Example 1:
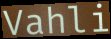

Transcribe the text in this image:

Vahli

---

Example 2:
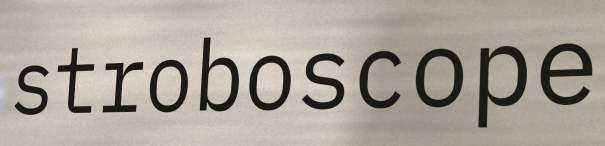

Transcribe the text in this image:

stroboscope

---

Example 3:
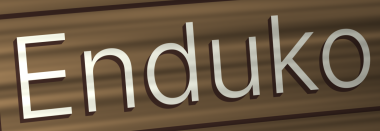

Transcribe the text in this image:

Enduko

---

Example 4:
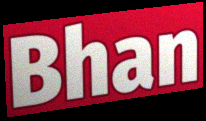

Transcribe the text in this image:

Bhan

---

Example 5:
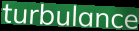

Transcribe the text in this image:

turbulance